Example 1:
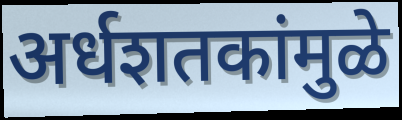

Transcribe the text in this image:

अर्धशतकांमुळे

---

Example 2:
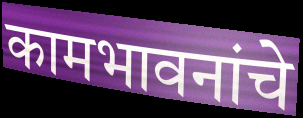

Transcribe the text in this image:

कामभावनांचे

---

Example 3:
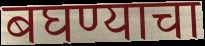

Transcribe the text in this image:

बघण्याचा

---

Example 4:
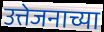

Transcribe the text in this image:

उत्तेजनाच्या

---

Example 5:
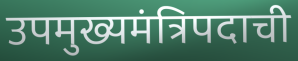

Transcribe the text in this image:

उपमुख्यमंत्रिपदाची